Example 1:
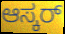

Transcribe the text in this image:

ಆಸ್ಕರ್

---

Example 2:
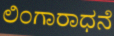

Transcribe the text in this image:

ಲಿಂಗಾರಾಧನೆ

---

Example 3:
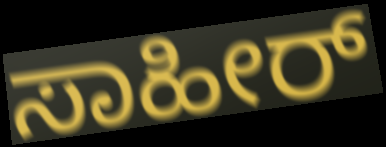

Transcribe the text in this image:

ಸಾಹೀರ್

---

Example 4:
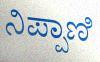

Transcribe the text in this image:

ನಿಪ್ಪಾಣಿ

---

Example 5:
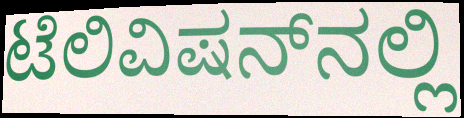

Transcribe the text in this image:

ಟೆಲಿವಿಷನ್‌ನಲ್ಲಿ